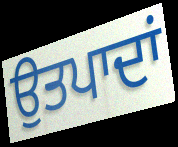
ਉਤਪਾਦਾਂ